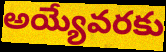
అయ్యేవరకు